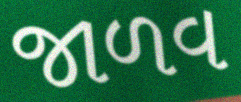
જાળવ